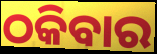
ଠକିବାର